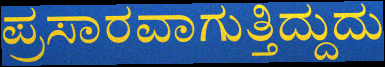
ಪ್ರಸಾರವಾಗುತ್ತಿದ್ದುದು